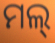
ମଲ୍